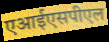
एआईएसपीएल